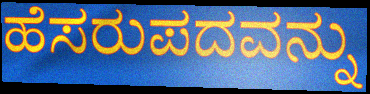
ಹೆಸರುಪದವನ್ನು